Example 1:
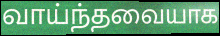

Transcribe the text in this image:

வாய்ந்தவையாக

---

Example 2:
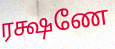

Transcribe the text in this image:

ரக்ஷணே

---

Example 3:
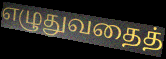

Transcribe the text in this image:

எழுதுவதைத்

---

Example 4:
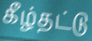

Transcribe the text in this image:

கீழ்தட்டு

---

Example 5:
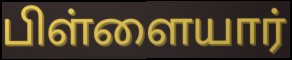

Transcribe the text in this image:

பிள்ளையார்